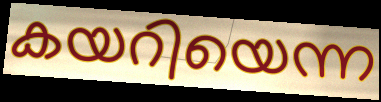
കയറിയെന്ന